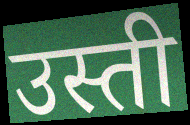
उस्ती